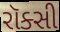
રૉક્સી